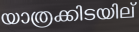
യാത്രക്കിടയില്